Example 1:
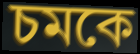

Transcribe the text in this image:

চমকে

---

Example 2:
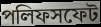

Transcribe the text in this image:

পলিফসফেট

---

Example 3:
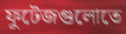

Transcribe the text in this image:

ফুটেজগুলোতে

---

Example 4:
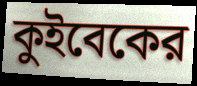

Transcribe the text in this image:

কুইবেকের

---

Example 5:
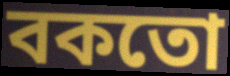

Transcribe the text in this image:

বকতো